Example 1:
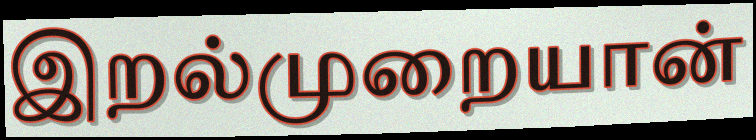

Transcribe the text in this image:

இறல்முறையான்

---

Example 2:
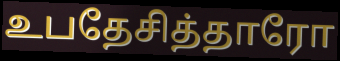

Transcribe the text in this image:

உபதேசித்தாரோ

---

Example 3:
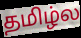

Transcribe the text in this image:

தமிழ்ல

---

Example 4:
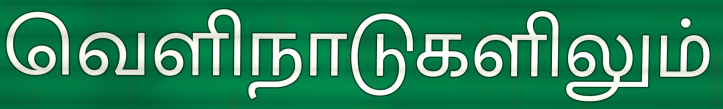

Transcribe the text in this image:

வெளிநாடுகளிலும்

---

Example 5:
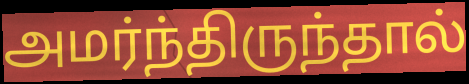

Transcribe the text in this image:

அமர்ந்திருந்தால்